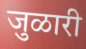
जुळारी